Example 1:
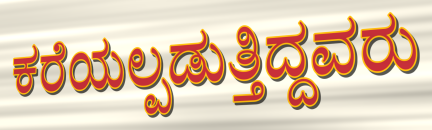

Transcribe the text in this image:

ಕರೆಯಲ್ಪಡುತ್ತಿದ್ದವರು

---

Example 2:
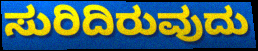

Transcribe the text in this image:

ಸುರಿದಿರುವುದು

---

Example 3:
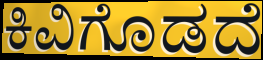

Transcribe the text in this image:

ಕಿವಿಗೊಡದೆ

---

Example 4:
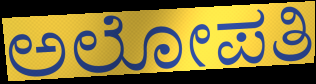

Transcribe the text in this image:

ಅಲೋಪತಿ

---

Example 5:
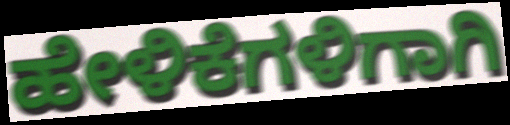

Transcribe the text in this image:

ಹೇಳಿಕೆಗಳಿಗಾಗಿ